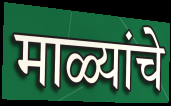
माळ्यांचे